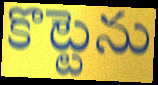
కొట్టెను